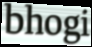
bhogi